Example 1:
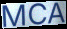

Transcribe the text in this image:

MCA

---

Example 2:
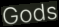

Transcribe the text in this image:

Gods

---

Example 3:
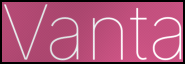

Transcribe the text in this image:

Vanta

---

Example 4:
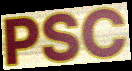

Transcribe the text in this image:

PSC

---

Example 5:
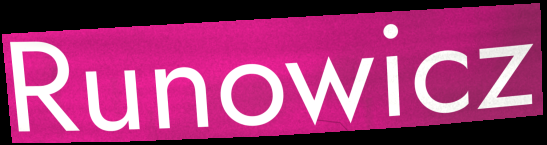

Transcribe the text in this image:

Runowicz